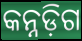
କନ୍ନଡ଼ିଗ